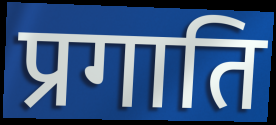
प्रगाति